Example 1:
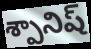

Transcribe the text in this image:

శ్పానిష్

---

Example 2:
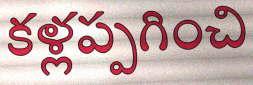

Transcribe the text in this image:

కళ్లప్పగించి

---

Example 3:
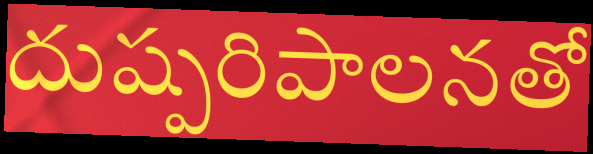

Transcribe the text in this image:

దుష్పరిపాలనతో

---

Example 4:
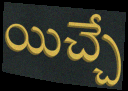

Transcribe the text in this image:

యిచ్చే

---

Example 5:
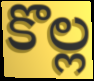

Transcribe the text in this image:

కొల్ల